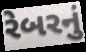
રેબરનું